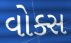
વોક્સ